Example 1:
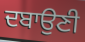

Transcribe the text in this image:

ਦਬਾਉਣੀ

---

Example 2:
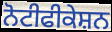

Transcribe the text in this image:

ਨੋਟੀਫੀਕੇਸ਼ਨ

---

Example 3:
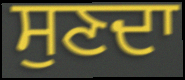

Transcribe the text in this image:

ਸੁਣਦਾ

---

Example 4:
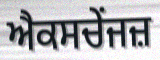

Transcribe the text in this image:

ਐਕਸਚੇਂਜਜ਼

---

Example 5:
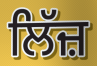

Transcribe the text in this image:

ਲਿੱਜ਼